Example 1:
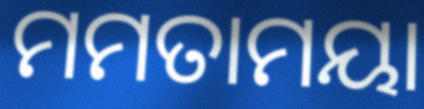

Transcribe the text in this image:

ମମତାମୟା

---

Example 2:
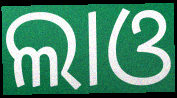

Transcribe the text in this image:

ଲାଓ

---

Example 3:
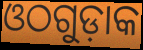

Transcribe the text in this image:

ଓଠଗୁଡ଼ାକ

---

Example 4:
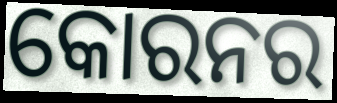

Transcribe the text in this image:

କୋରନର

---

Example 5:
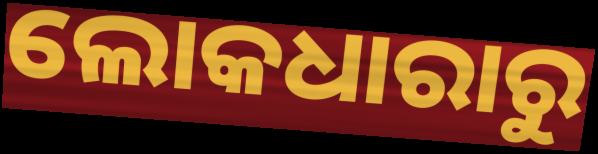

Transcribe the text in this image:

ଲୋକଧାରାରୁ